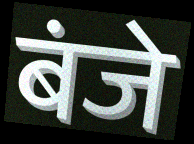
बंजे